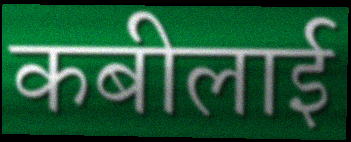
कबीलाई